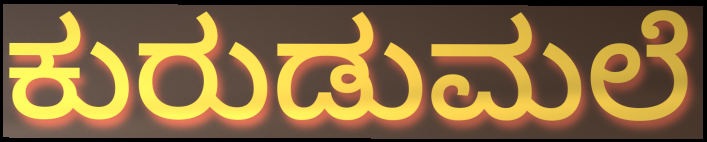
ಕುರುಡುಮಲೆ